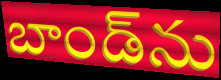
బాండ్‌ను